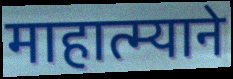
माहात्म्याने